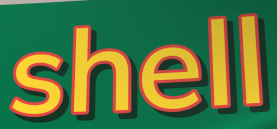
shell